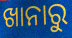
ଖାନାରୁ